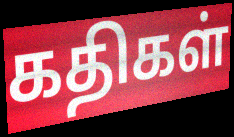
கதிகள்